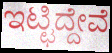
ಇಟ್ಟಿದ್ದೇವೆ